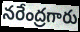
నరేంద్రగారు